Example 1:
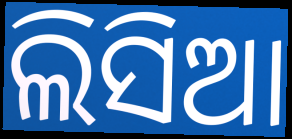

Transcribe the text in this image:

ଲିସିଆ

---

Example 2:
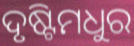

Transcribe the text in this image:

ଦୃଷ୍ଟିମଧୁର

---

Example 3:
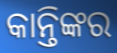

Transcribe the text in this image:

କାନ୍ତିଙ୍କର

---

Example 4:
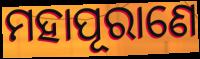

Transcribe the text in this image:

ମହାପୂରାଣେ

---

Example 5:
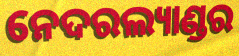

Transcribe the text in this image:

ନେଦରଲ୍ୟାଣ୍ଡର